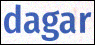
dagar